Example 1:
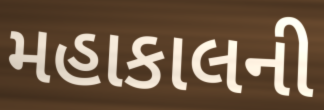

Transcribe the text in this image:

મહાકાલની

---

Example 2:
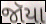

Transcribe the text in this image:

જૉયા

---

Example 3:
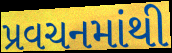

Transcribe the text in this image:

પ્રવચનમાંથી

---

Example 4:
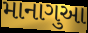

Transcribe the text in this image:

માનાગુઆ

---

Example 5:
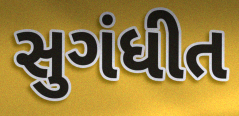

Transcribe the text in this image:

સુગંધીત